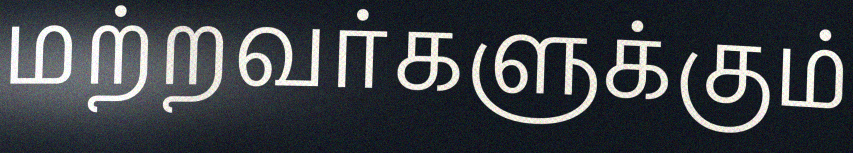
மற்றவர்களுக்கும்